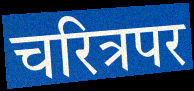
चरित्रपर